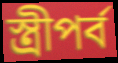
স্ত্রীপর্ব